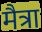
मैत्रा